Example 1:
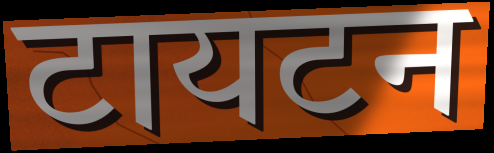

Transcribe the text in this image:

टायटन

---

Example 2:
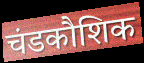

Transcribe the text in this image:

चंडकौशिक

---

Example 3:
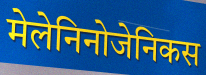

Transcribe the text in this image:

मेलेनिनोजेनिकस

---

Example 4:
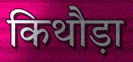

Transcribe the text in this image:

किथौड़ा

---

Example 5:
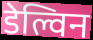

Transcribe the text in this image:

डेल्विन